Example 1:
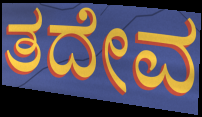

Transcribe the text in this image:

ತದೇವ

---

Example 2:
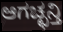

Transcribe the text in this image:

ಆಗಚ್ಛನ್ತಿ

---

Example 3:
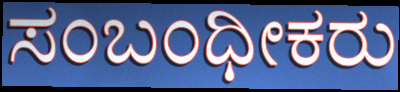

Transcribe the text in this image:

ಸಂಬಂಧೀಕರು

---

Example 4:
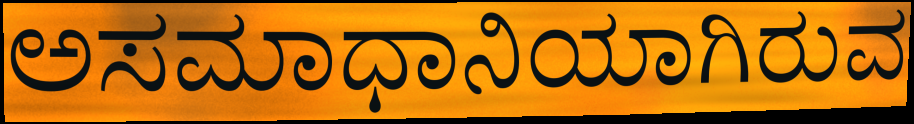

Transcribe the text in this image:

ಅಸಮಾಧಾನಿಯಾಗಿರುವ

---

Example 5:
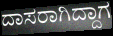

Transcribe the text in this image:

ದಾಸರಾಗಿದ್ದಾಗ